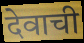
देवाची